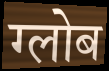
ग्‍लोब